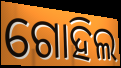
ଗୋହିଲ